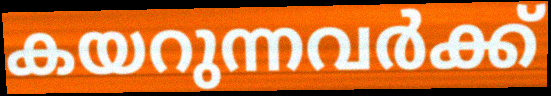
കയറുന്നവർക്ക്